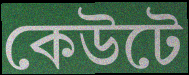
কেউটে